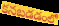
కనబడడంలో